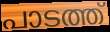
പാടത്ത്